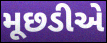
મૂછડીએ